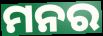
ମନର